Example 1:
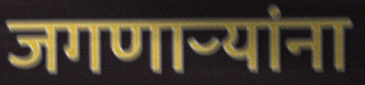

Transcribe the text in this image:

जगणाऱ्यांना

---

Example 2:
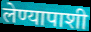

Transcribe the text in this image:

लेण्यापाशी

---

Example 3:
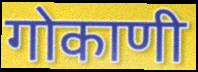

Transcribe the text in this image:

गोकाणी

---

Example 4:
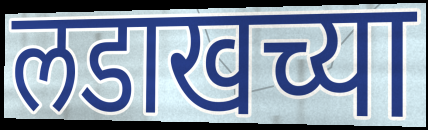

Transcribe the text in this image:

लडाखच्या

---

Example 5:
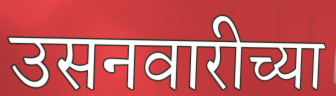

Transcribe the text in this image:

उसनवारीच्या